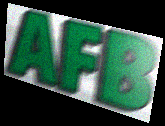
AFB